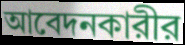
আবেদনকারীর